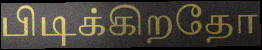
பிடிக்கிறதோ